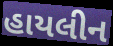
હાયલીન